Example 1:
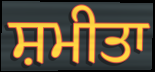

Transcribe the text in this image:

ਸ਼ਮੀਤਾ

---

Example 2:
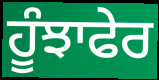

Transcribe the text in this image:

ਹੂੰਝਾਫੇਰ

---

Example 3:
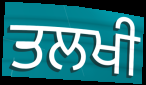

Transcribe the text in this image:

ਤਲਖੀ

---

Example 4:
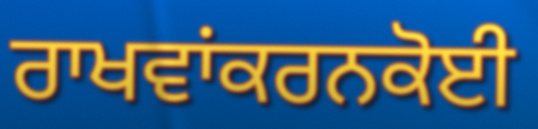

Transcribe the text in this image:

ਰਾਖਵਾਂਕਰਨਕੋਈ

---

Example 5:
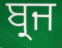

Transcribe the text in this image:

ਬ੍ਰਜ